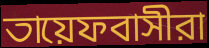
তায়েফবাসীরা